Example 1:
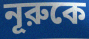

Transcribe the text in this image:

নূরুকে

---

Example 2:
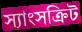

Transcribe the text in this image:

স্যাংসক্রিট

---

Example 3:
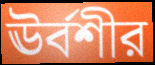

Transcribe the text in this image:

ঊর্বশীর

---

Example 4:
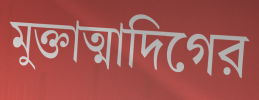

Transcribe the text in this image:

মুক্তাত্মাদিগের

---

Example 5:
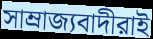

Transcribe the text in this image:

সাম্রাজ্যবাদীরাই